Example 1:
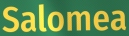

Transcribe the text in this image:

Salomea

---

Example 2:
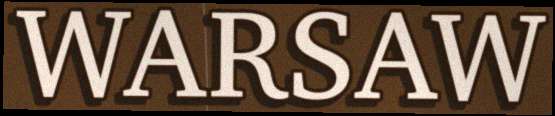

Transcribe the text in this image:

WARSAW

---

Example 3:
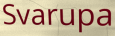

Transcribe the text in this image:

Svarupa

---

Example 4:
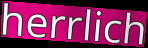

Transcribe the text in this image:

herrlich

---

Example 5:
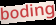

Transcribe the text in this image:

boding